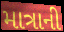
માત્રાની